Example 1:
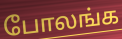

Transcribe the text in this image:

போலங்க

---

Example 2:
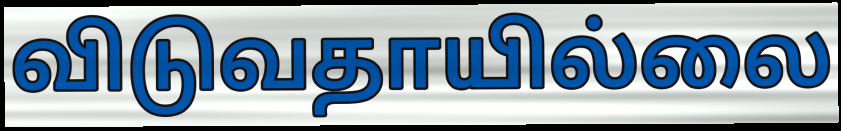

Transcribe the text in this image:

விடுவதாயில்லை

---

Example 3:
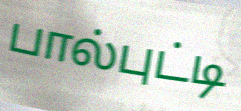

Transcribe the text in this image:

பால்புட்டி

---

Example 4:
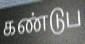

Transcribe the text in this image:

கண்டுப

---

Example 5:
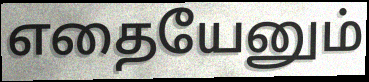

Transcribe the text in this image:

எதையேனும்